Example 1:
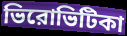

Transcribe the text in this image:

ভিরোভিটিকা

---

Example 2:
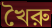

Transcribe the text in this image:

খৈরু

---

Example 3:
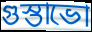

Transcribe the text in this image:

গুস্তাভো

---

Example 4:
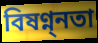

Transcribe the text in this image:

বিষণ্ন্নতা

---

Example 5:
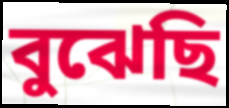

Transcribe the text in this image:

বুঝেছি